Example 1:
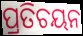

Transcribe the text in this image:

ପ୍ରତିଚୟନ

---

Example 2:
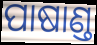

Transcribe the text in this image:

ପାଷାଣ୍ଡ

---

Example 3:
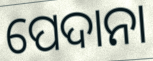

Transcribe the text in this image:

ପେଦାନା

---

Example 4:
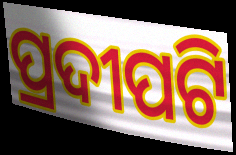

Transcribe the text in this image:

ପ୍ରଦୀପଟି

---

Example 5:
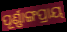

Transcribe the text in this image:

ପୂର୍ଣ୍ଣାଙ୍ଗପ୍ରାୟ